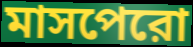
মাসপেরো